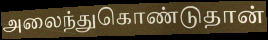
அலைந்துகொண்டுதான்